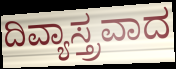
ದಿವ್ಯಾಸ್ತ್ರವಾದ